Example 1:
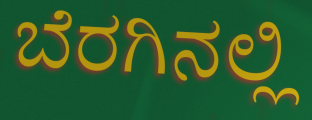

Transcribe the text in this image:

ಬೆರಗಿನಲ್ಲಿ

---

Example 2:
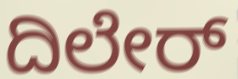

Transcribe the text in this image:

ದಿಲೇರ್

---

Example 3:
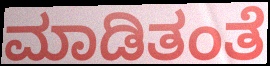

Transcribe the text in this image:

ಮಾಡಿತಂತೆ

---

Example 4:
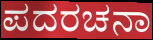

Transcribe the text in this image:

ಪದರಚನಾ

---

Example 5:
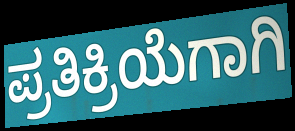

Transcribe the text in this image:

ಪ್ರತಿಕ್ರಿಯೆಗಾಗಿ